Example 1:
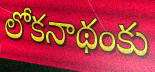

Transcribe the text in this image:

లోకనాథంకు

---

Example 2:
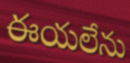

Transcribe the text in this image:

ఈయలేను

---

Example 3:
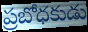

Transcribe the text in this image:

ప్రబోధకుడు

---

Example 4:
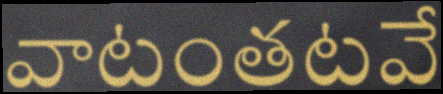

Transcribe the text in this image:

వాటంతటవే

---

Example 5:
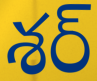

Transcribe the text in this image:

శర్